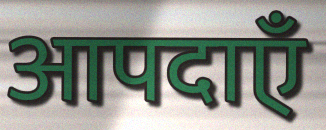
आपदाएँ